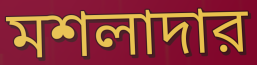
মশলাদার